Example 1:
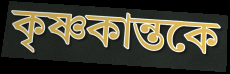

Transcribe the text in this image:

কৃষ্ণকান্তকে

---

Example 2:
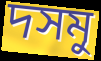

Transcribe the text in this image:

দসমু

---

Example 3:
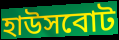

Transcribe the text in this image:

হাউসবোট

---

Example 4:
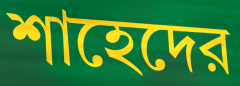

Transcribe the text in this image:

শাহেদের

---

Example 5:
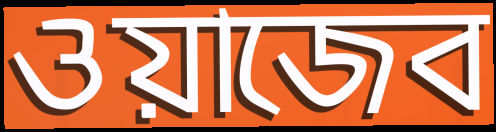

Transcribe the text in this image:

ওয়াজেব